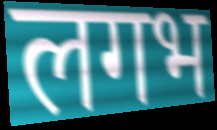
लगभ